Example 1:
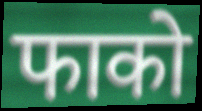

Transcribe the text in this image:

फाको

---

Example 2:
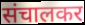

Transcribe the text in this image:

संचालकर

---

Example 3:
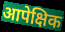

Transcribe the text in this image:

आपेक्षिक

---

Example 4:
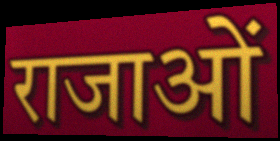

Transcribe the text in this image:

राजाओं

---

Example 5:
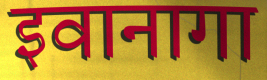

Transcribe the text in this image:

इवानागा